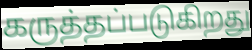
கருத்தப்படுகிறது